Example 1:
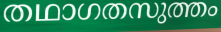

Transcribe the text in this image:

തഥാഗതസുത്തം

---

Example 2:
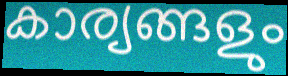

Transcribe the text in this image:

കാര്യങ്ങളും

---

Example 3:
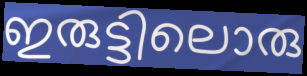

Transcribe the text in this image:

ഇരുട്ടിലൊരു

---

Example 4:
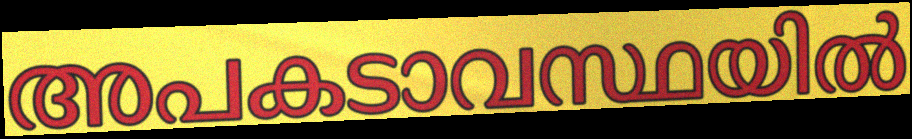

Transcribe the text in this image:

അപകടാവസ്ഥയിൽ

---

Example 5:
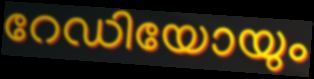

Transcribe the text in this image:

റേഡിയോയും